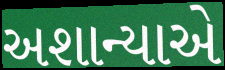
અશાન્યાએ